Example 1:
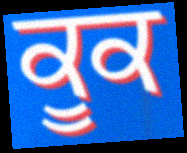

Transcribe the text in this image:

ਕੂਕ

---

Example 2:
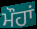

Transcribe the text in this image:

ਮੌਹਾਂ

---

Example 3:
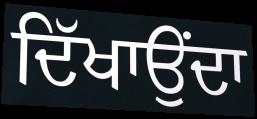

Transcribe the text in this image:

ਦਿੱਖਾਉਂਦਾ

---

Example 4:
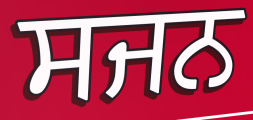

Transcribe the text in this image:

ਸਜਨ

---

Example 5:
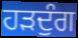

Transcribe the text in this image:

ਹੜਦੁੰਗ